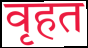
वृहत